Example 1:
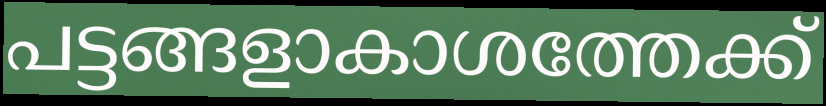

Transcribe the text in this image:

പട്ടങ്ങളാകാശത്തേക്ക്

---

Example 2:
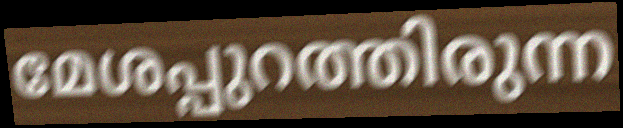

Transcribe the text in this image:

മേശപ്പുറത്തിരുന്ന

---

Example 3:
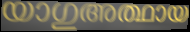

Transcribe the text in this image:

യാഗുഅത്ഥായ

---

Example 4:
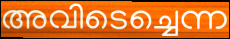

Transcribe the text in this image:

അവിടെച്ചെന്ന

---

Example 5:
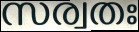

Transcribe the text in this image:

സര്വതഃ